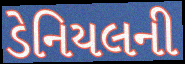
ડેનિયલની